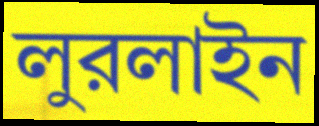
লুরলাইন